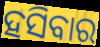
ହସିବାର